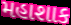
મહાશાક